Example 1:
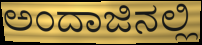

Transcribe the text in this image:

ಅಂದಾಜಿನಲ್ಲಿ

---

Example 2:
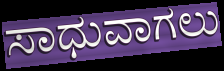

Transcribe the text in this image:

ಸಾಧುವಾಗಲು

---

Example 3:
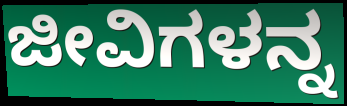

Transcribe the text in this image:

ಜೀವಿಗಳನ್ನ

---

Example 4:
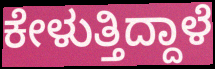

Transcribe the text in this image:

ಕೇಳುತ್ತಿದ್ದಾಳೆ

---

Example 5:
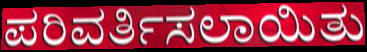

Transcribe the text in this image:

ಪರಿವರ್ತಿಸಲಾಯಿತು